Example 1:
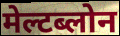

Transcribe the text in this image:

मेल्टब्लोन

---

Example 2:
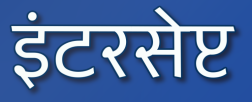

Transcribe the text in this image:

इंटरसेप्ट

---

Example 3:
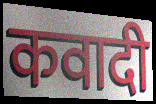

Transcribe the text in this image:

कवादी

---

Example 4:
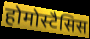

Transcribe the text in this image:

होमोस्टैसिस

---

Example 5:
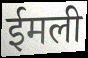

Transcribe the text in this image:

ईमली